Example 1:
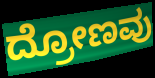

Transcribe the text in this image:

ದ್ರೋಣವು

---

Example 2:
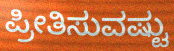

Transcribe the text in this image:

ಪ್ರೀತಿಸುವಷ್ಟು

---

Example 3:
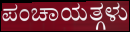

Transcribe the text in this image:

ಪಂಚಾಯತ್ಗಳು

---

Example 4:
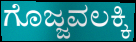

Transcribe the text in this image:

ಗೊಜ್ಜವಲಕ್ಕಿ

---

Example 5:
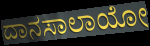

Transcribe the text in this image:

ದಾನಸಾಲಾಯೋ